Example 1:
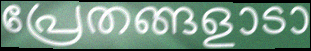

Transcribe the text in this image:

പ്രേതങ്ങളാടാ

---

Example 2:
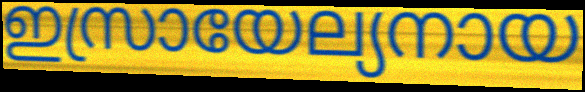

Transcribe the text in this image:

ഇസ്രായേല്യനായ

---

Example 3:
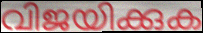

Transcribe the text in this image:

വിജയിക്കുക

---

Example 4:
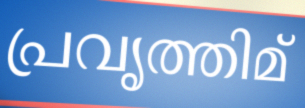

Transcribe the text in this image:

പ്രവൃത്തിമ്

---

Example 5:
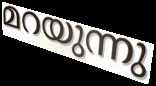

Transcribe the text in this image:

മറയുന്നു